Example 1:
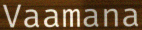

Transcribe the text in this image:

Vaamana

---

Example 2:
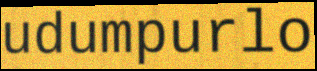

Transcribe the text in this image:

udumpurlo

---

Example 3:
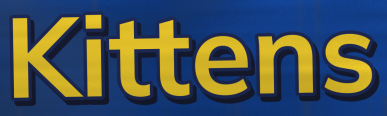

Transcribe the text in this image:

Kittens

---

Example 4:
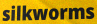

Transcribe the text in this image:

silkworms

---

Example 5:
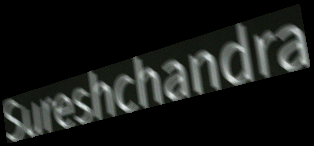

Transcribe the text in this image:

Sureshchandra